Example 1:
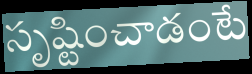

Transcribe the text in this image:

సృష్టించాడంటే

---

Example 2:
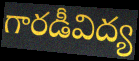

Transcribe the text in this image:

గారడీవిద్య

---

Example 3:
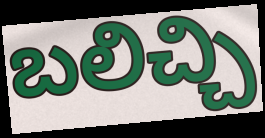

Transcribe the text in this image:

బలిచ్చి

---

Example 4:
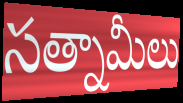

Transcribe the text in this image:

సత్నామీలు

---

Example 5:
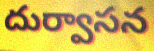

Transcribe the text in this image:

దుర్వాసన